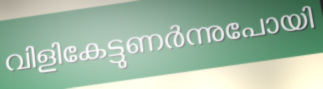
വിളികേട്ടുണർന്നുപോയി